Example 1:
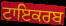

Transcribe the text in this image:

ਟਾਇਕਰਬ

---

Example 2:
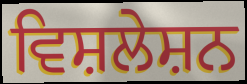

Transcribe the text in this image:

ਵਿਸ਼ਲੇਸ਼ਨ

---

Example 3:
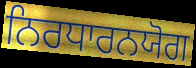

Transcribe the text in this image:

ਨਿਰਧਾਰਨਯੋਗ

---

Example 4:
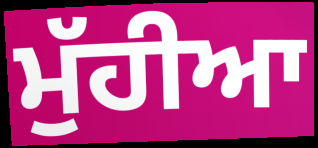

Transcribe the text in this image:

ਮੁੱਹੀਆ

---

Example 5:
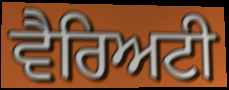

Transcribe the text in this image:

ਵੈਰਿਅਟੀ